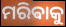
ମରିଵାକୁ